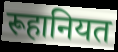
रूहानियत